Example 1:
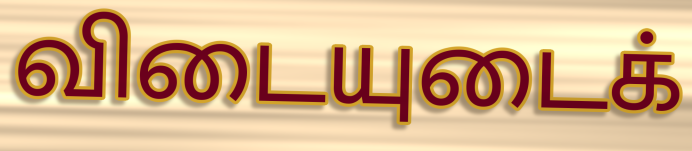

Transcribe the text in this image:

விடையுடைக்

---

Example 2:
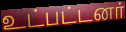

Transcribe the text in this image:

உட்பட்டனர்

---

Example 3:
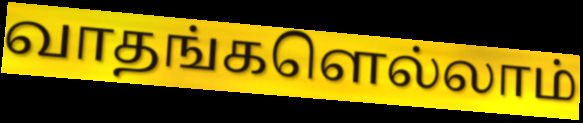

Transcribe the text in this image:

வாதங்களெல்லாம்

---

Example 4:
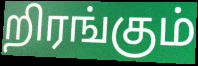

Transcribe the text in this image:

றிரங்கும்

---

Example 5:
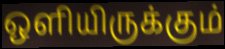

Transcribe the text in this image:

ஒளியிருக்கும்